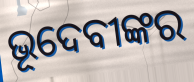
ଭୂଦେବୀଙ୍କର